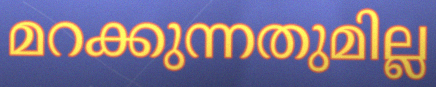
മറക്കുന്നതുമില്ല